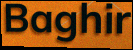
Baghir